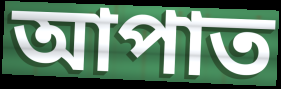
আপাত